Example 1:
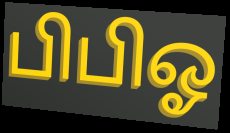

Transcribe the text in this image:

பிபிஓ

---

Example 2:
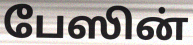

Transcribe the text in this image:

பேஸின்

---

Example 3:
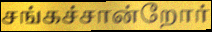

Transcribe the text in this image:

சங்கச்சான்றோர்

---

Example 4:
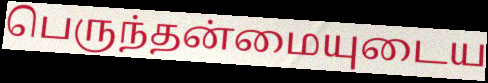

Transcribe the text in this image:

பெருந்தன்மையுடைய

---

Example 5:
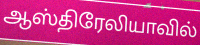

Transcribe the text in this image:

ஆஸ்திரேலியாவில்